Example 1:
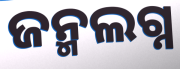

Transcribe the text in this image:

ଜନ୍ମଲଗ୍ନ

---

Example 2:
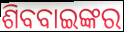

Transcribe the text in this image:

ଶିବବାଇଙ୍କର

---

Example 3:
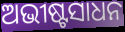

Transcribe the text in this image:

ଅଭୀଷ୍ଟସାଧନ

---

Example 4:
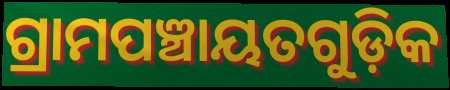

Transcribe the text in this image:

ଗ୍ରାମପଞ୍ଚାୟତଗୁଡ଼ିକ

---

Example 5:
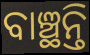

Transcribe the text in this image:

ବାଞ୍ଛନ୍ତି